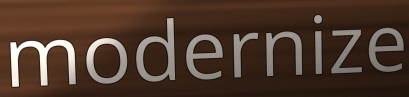
modernize